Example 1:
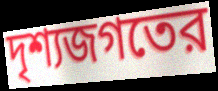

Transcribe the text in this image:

দৃশ্যজগতের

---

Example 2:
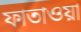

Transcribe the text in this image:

ফাতাওয়া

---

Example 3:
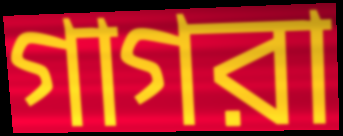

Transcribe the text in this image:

গাগরা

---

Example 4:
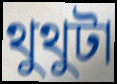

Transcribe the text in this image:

থুথুটা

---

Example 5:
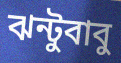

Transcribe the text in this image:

ঝন্টুবাবু